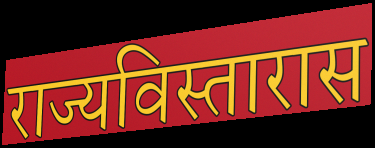
राज्यविस्तारास